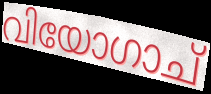
വിയോഗാച്